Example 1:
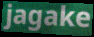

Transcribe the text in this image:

jagake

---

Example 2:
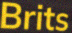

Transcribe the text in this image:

Brits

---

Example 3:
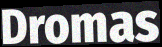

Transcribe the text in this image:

Dromas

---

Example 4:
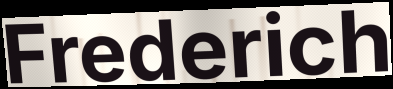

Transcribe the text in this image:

Frederich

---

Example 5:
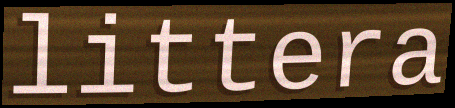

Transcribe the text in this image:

littera